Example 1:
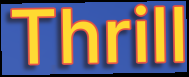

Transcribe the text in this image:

Thrill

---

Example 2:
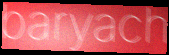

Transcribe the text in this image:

baryach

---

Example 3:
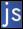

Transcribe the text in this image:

js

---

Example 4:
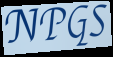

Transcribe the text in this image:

NPGS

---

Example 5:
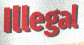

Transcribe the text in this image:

Illegal